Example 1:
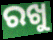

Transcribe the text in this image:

ରଖୁ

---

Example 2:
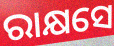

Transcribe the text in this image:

ରାକ୍ଷସେ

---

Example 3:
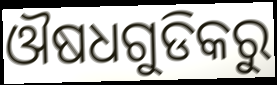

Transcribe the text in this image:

ଔଷଧଗୁଡିକରୁ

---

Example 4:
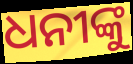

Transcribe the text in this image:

ଧନୀଙ୍କୁ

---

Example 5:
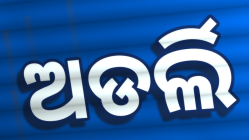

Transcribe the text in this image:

ଅଡର୍ଲି